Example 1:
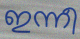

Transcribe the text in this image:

ഇന്നീ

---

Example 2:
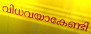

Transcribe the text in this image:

വിധവയാകേണ്ടി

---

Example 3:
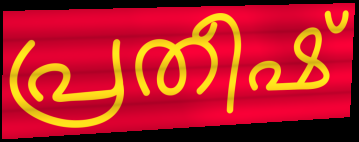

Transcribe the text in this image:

പ്രതീഷ്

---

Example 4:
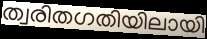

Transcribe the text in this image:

ത്വരിതഗതിയിലായി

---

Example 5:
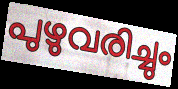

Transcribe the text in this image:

പുഴുവരിച്ചും